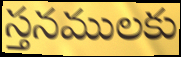
స్తనములకు